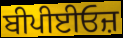
ਬੀਪੀਈਓਜ਼